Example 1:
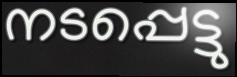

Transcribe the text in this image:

നടപ്പെട്ടു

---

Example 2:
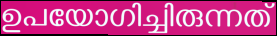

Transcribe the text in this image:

ഉപയോഗിച്ചിരുന്നത്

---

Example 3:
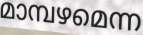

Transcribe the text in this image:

മാമ്പഴമെന്ന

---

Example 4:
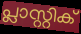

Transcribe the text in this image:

പ്ലാസ്റ്റിക്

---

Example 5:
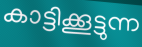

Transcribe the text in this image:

കാട്ടിക്കൂട്ടുന്ന